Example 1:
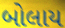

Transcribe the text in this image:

બોલાય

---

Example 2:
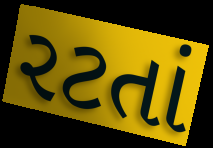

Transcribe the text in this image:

રટતાં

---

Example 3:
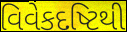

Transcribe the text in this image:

વિવેકદષ્ટિથી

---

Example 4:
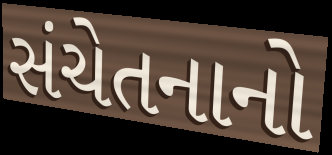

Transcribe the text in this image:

સંચેતનાનો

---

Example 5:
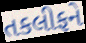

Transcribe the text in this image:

તકલીફને